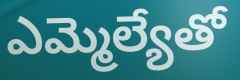
ఎమ్మెల్యేతో